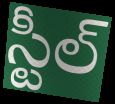
స్టీల్